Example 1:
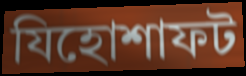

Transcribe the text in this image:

যিহোশাফট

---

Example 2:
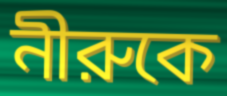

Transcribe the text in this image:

নীরুকে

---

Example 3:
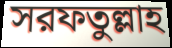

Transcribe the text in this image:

সরফতুল্লাহ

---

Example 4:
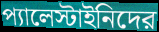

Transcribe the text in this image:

প্যালেস্টাইনিদের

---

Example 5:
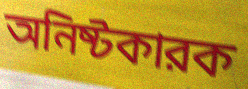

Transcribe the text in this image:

অনিষ্টকারক